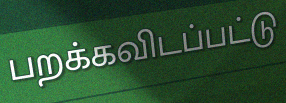
பறக்கவிடப்பட்டு